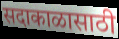
सदाकाळासाठी